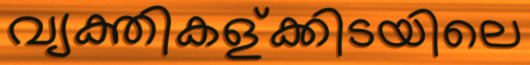
വ്യക്തികള്ക്കിടയിലെ